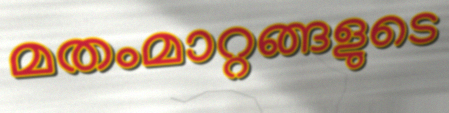
മതംമാറ്റങ്ങളുടെ